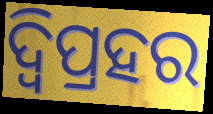
ଦ୍ବିପ୍ରହର